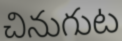
చినుగుట